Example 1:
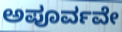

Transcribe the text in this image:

ಅಪೂರ್ವವೇ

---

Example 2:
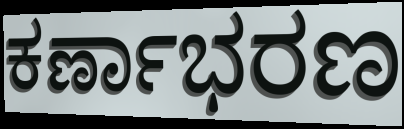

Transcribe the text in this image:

ಕರ್ಣಾಭರಣ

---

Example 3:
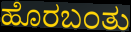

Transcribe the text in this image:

ಹೊರಬಂತು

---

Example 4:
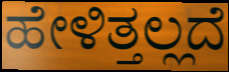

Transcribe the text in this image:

ಹೇಳಿತ್ತಲ್ಲದೆ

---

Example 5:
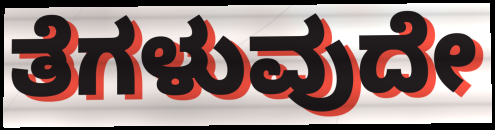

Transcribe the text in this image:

ತೆಗಳುವುದೇ